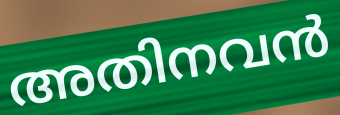
അതിനവൻ